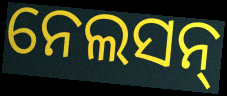
ନେଲସନ୍